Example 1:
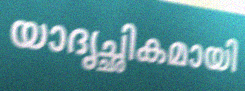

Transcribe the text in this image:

യാദൃച്ഛികമായി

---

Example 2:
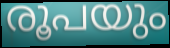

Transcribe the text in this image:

രൂപയും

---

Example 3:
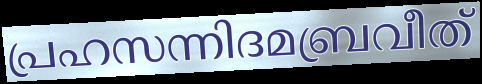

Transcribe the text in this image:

പ്രഹസന്നിദമബ്രവീത്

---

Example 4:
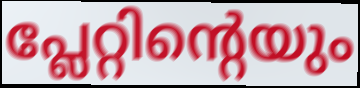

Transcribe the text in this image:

പ്ലേറ്റിന്റെയും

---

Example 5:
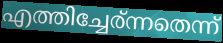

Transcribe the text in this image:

എത്തിച്ചേര്ന്നതെന്ന്